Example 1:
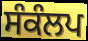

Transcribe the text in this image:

ਸੰਕੰਲਪ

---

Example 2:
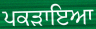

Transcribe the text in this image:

ਪਕੜਾਇਆ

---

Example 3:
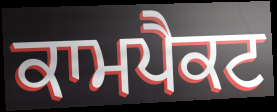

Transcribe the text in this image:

ਕਾਮਪੈਕਟ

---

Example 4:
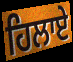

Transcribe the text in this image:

ਹਿਲਾਏ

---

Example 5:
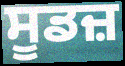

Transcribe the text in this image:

ਸੂਡਜ਼